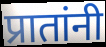
प्रातांनी